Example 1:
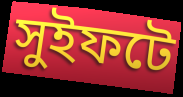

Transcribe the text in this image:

সুইফটে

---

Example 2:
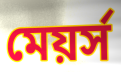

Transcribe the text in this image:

মেয়র্স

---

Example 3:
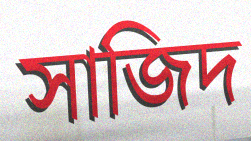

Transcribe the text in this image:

সাজিদ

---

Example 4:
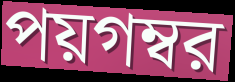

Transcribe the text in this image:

পয়গম্বর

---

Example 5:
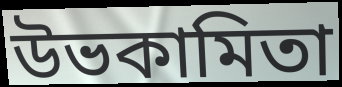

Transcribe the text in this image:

উভকামিতা